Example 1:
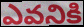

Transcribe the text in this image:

ఎవనికి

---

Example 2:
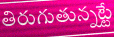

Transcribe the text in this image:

తిరుగుతున్నట్టే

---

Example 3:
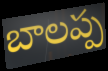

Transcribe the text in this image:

బాలప్ప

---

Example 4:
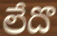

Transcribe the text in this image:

లేదొ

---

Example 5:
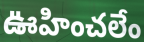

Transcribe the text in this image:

ఊహించలేం